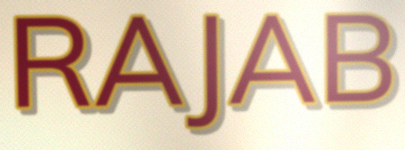
RAJAB